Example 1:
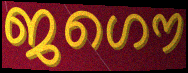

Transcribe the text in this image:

ജഗൌ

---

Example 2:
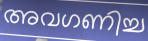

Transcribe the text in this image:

അവഗണിച്ച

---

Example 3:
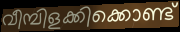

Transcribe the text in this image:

വീമ്പിളക്കിക്കൊണ്ട്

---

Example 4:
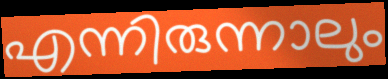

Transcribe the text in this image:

എന്നിരുന്നാലും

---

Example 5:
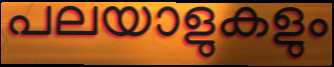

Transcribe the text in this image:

പലയാളുകളും